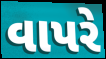
વાપરે